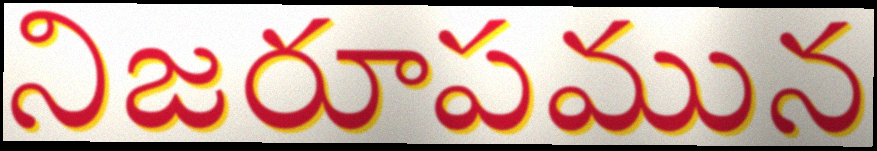
నిజరూపమున